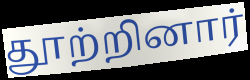
தூற்றினார்